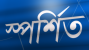
স্পর্শিত